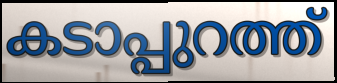
കടാപ്പുറത്ത്